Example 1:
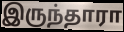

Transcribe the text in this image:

இருந்தாரா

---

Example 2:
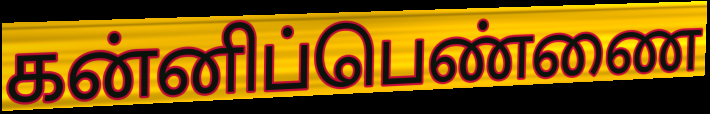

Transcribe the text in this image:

கன்னிப்பெண்ணை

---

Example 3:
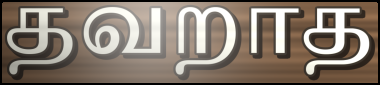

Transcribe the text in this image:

தவறாத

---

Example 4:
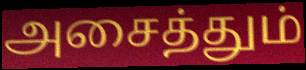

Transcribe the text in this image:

அசைத்தும்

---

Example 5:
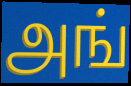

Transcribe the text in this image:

அங்